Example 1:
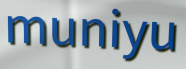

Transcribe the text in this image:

muniyu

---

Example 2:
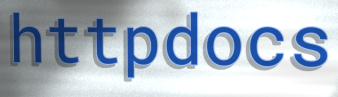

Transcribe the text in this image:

httpdocs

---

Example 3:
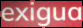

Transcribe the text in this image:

exigua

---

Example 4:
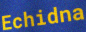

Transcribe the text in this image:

Echidna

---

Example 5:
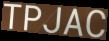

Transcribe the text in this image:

TPJAC